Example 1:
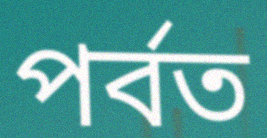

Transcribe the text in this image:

পর্বত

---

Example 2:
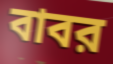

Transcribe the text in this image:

বাবর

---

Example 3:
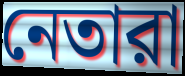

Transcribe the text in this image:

নেতারা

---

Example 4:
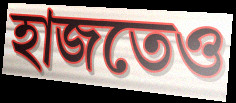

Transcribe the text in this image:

হাজতেও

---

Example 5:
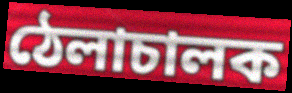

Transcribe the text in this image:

ঠেলাচালক